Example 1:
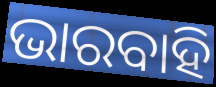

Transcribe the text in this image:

ଭାରବାହି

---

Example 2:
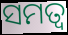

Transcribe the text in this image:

ସମତ୍ଵ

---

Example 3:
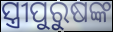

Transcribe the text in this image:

ସ୍ତ୍ରୀପୁରୁଷଙ୍କ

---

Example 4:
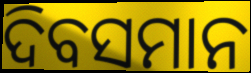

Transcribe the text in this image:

ଦିବସମାନ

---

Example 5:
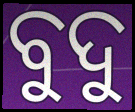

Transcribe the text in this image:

ବୁଦୁ